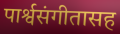
पार्श्वसंगीतासह